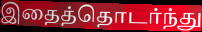
இதைத்தொடர்ந்து